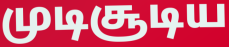
முடிசூடிய